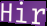
Hir